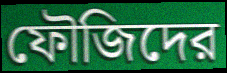
ফৌজিদের